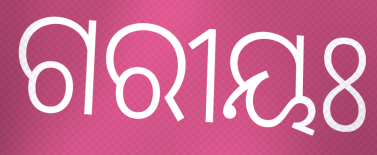
ଗରୀୟଃ